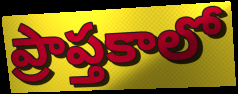
ప్రాప్తకాలో